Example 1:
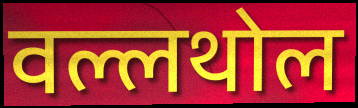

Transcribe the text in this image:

वल्लथोल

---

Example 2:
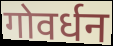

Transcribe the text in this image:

गोवर्धन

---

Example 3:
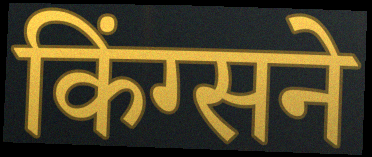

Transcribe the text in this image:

किंग्सने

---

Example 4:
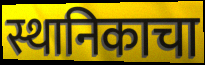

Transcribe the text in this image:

स्थानिकाचा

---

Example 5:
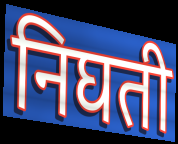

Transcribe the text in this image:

निघती